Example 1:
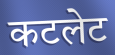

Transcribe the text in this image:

कटलेट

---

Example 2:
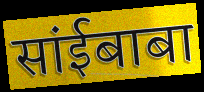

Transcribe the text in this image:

सांईबाबा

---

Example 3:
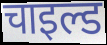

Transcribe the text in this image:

चाइल्ड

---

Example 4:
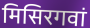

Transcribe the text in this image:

मिसिरगवां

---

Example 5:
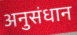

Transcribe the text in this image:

अनुसंधान